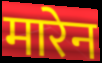
मारेन